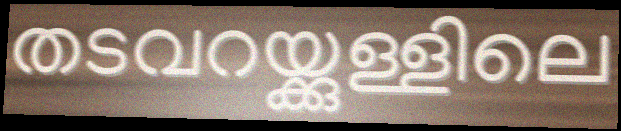
തടവറയ്ക്കുള്ളിലെ